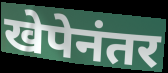
खेपेनंतर